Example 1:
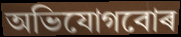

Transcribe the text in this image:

অভিযোগবোৰ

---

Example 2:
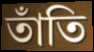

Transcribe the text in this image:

তাঁতি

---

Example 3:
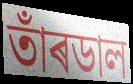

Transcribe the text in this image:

তাঁৰডাল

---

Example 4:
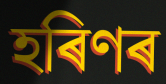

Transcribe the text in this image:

হৰিণৰ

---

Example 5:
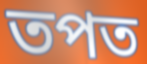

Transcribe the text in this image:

তপত